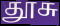
தூசு